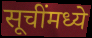
सूचींमध्ये